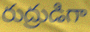
రుద్రుడిగా